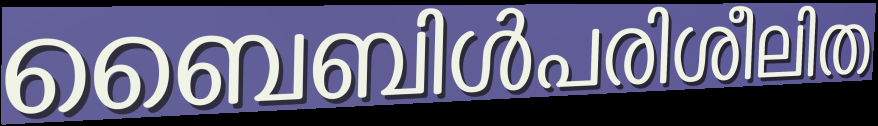
ബൈബിൾപരിശീലിത